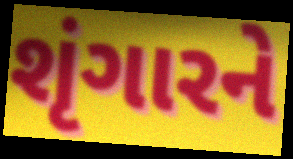
શૃંગારને